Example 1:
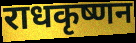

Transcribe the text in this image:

राधकृष्णन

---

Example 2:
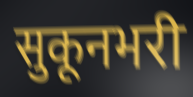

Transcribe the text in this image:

सुकूनभरी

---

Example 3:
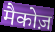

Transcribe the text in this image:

मैकोज़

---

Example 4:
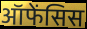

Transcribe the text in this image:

ऑफेंसिस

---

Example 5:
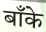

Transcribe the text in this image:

बाँके